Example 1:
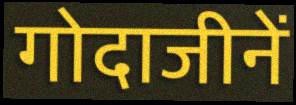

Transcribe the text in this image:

गोदाजीनें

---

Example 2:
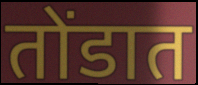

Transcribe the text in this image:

तोंडात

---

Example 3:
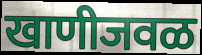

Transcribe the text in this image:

खाणीजवळ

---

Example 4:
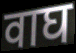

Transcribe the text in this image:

वाघ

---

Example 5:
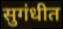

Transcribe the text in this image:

सुगंधीत